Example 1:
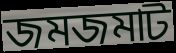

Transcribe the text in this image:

জমজমাট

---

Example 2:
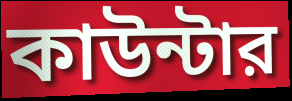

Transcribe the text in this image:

কাউন্টার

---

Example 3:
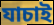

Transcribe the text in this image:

যাচাই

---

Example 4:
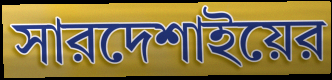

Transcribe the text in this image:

সারদেশাইয়ের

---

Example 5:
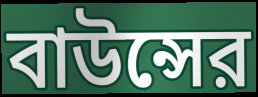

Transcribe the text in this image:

বাউন্সের